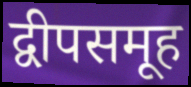
द्वीपसमूह